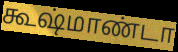
கூஷ்மாண்டா